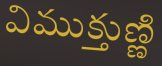
విముక్తుణ్ణి